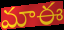
మాఈ